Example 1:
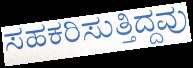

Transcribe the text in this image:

ಸಹಕರಿಸುತ್ತಿದ್ದವು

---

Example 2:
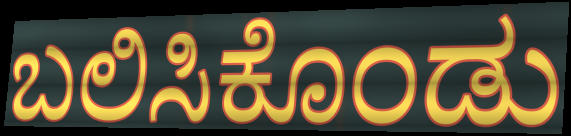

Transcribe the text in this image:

ಬಲಿಸಿಕೊಂಡು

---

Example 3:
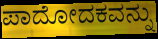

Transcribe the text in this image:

ಪಾದೋದಕವನ್ನು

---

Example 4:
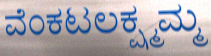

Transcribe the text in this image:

ವೆಂಕಟಲಕ್ಷ್ಮಮ್ಮ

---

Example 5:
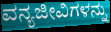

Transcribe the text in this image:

ವನ್ಯಜೀವಿಗಳನ್ನು